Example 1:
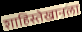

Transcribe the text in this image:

शाहिस्तेखानला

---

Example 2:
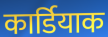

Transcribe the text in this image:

कार्डियाक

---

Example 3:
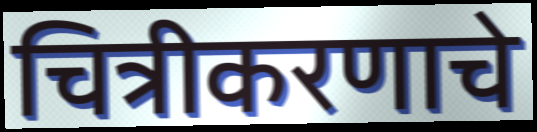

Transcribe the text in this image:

चित्रीकरणाचे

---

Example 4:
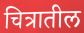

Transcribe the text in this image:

चित्रातील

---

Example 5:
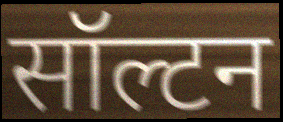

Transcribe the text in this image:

सॉल्टन